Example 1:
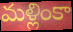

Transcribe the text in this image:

మళ్లింకా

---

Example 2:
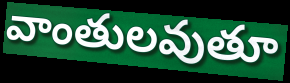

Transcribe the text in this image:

వాంతులవుతూ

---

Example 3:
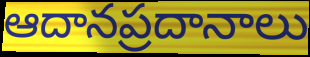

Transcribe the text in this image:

ఆదానప్రదానాలు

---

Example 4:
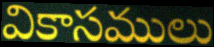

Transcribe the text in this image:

వికాసములు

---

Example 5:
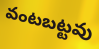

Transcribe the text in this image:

వంటబట్టవు